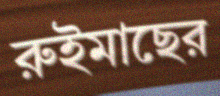
রুইমাছের